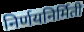
निर्णयनिर्मिती